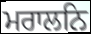
ਮਰਾਲਨਿ